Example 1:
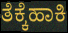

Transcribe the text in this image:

ತೆಕ್ಕೆಹಾಕಿ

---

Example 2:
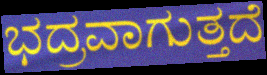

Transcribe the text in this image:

ಭದ್ರವಾಗುತ್ತದೆ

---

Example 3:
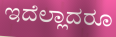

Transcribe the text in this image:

ಇದೆಲ್ಲಾದರೂ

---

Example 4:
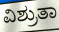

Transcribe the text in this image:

ವಿಶ್ರುತಾ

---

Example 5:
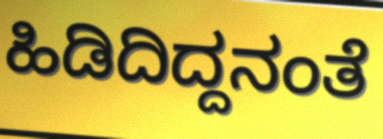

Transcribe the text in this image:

ಹಿಡಿದಿದ್ದನಂತೆ